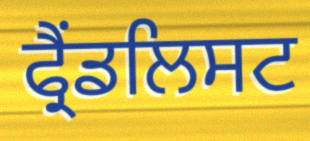
ਫ੍ਰੈਂਡਲਿਸਟ